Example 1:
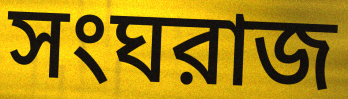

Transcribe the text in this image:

সংঘরাজ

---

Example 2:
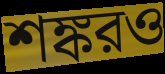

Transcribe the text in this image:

শঙ্করও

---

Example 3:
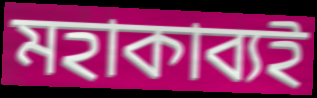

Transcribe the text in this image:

মহাকাব্যই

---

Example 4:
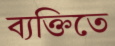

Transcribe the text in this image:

ব্যক্তিতে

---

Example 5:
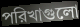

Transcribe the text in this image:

পরিখাগুলো